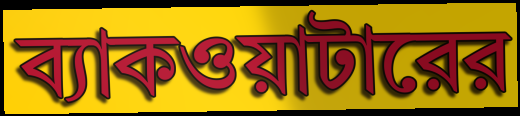
ব্যাকওয়াটারের